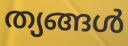
ത്യങ്ങൾ